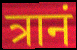
त्रानं